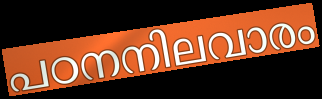
പഠനനിലവാരം